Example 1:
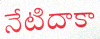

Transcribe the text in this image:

నేటిదాకా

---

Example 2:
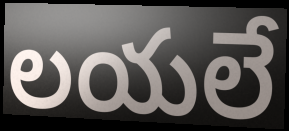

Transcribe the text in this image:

లయలే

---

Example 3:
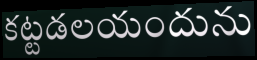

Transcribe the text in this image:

కట్టడలయందును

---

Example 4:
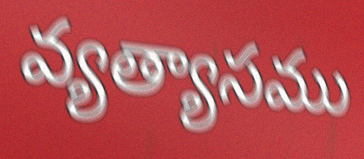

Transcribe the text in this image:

వ్యత్యాసము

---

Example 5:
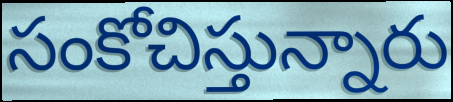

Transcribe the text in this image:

సంకోచిస్తున్నారు